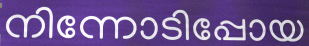
നിന്നോടിപ്പോയ